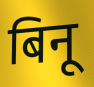
बिनू